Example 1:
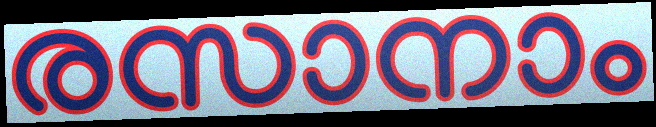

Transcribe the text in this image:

രസാനാം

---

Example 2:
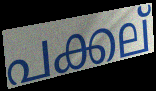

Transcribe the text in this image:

പക്കല്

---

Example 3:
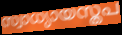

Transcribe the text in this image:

സ്വാധ്യായസ്തപ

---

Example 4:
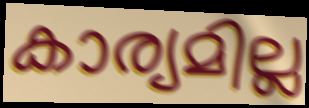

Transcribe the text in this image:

കാര്യമില്ല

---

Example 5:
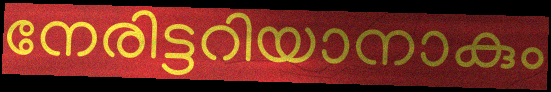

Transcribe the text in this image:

നേരിട്ടറിയാനാകും